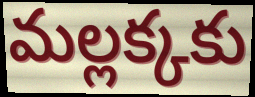
మల్లక్కకు